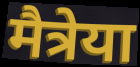
मैत्रेया